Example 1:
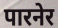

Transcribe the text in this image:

पारनेर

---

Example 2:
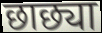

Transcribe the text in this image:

छाछ्या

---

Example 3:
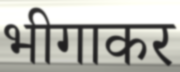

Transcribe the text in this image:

भीगाकर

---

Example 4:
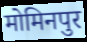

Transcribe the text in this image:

मोमिनपुर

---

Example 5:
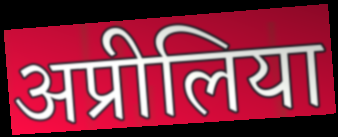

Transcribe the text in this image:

अप्रीलिया